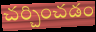
చర్చించడం